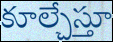
కూల్చేస్తూ